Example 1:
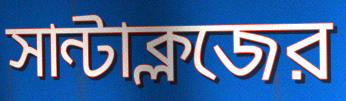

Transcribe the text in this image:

সান্টাক্লজের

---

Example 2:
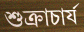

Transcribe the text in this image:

শুক্রাচার্য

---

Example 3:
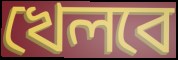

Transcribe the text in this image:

খেলবে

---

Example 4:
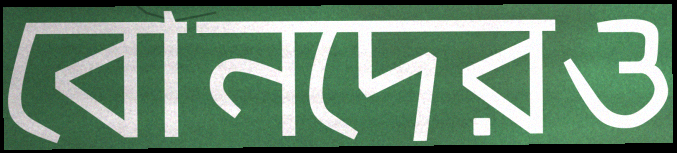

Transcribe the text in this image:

বোনদেরও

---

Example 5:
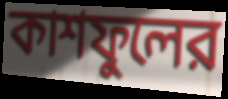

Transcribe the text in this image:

কাশফুলের